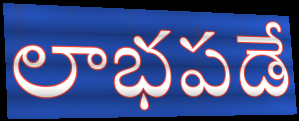
లాభపడే